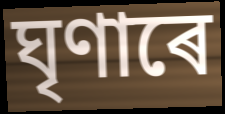
ঘৃণাৰে